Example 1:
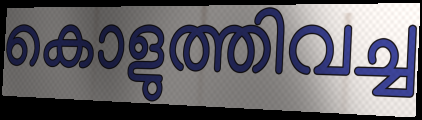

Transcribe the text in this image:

കൊളുത്തിവച്ച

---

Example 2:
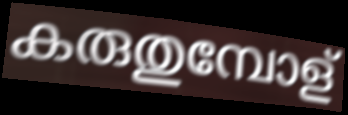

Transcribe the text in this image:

കരുതുമ്പോള്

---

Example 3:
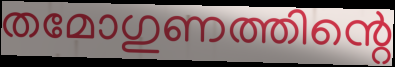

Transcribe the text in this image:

തമോഗുണത്തിന്റെ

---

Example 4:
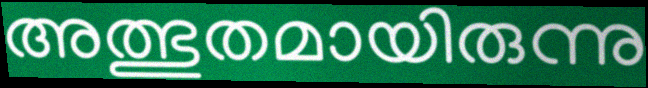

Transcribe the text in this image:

അത്ഭുതമായിരുന്നു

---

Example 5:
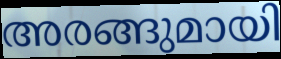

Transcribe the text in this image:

അരങ്ങുമായി